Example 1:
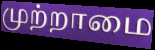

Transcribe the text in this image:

முற்றாமை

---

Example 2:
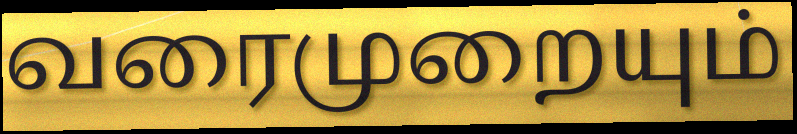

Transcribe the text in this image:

வரைமுறையும்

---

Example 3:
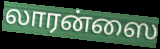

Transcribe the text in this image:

லாரன்ஸை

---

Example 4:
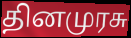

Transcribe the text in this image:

தினமுரசு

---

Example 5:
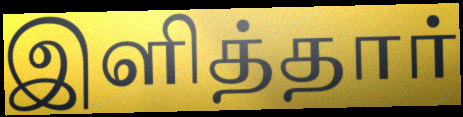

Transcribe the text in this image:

இளித்தார்